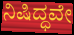
ನಿಷಿದ್ಧವೇ